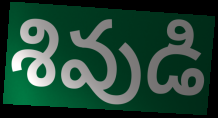
శివుడి